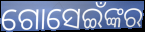
ଗୋସେଇଁଙ୍କର